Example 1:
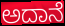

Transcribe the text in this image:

ಅದಾನೆ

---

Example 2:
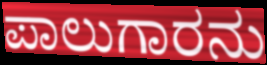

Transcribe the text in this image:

ಪಾಲುಗಾರನು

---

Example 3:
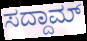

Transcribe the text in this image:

ಸದ್ದಾಮ್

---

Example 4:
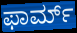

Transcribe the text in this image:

ಫಾರ್ಮ್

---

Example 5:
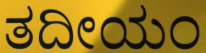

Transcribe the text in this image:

ತದೀಯಂ